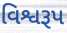
વિશ્વરૂપ